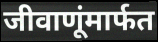
जीवाणूंमार्फत